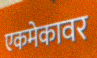
एकमेकावर